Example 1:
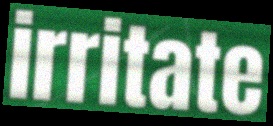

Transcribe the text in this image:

irritate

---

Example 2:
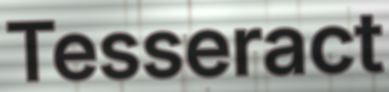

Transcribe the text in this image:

Tesseract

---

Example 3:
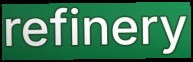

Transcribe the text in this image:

refinery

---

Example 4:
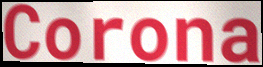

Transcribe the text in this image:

Corona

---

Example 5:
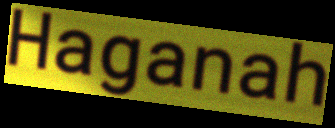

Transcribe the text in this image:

Haganah